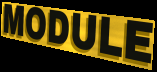
MODULE